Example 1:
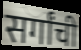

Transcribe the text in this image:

सर्गांची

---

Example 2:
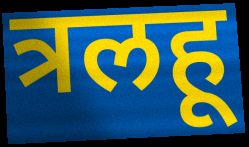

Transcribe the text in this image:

त्रलहू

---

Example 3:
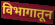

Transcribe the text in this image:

विभागातून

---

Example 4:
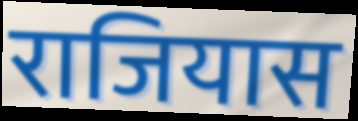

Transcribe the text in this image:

राजियास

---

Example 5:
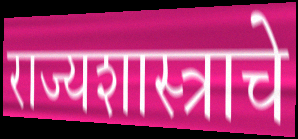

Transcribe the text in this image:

राज्यशास्त्राचे